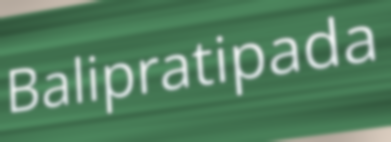
Balipratipada